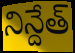
నిన్దేత్